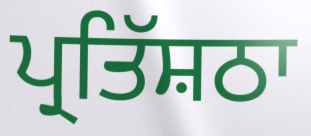
ਪ੍ਰਤਿੱਸ਼ਠਾ